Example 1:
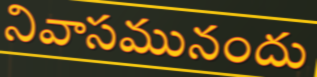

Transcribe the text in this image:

నివాసమునందు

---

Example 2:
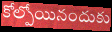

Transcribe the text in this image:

కోల్పోయినందుకు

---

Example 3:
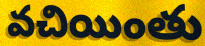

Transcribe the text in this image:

వచియింతు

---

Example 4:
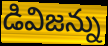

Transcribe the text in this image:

డివిజన్ను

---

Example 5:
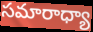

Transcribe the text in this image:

సమారాధ్యా